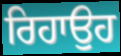
ਰਿਹਾਉਹ